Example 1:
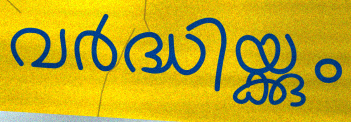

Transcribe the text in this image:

വർദ്ധിയ്ക്കും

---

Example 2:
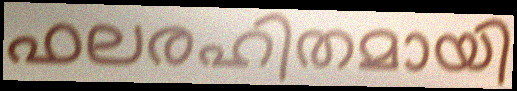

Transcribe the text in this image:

ഫലരഹിതമായി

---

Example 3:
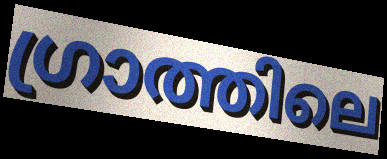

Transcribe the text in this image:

ഗ്രാത്തിലെ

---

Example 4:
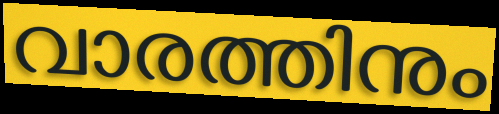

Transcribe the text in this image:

വാരത്തിനും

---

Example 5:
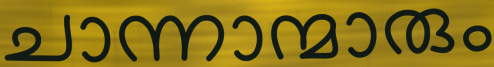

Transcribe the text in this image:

ചാന്നാന്മാരും